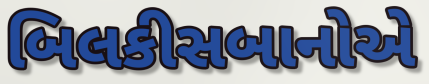
બિલકીસબાનોએ